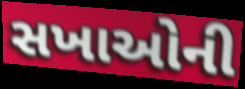
સખાઓની